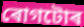
ৰোগটোৰ